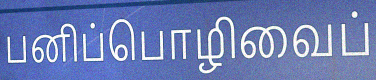
பனிப்பொழிவைப்